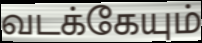
வடக்கேயும்